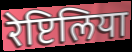
रेप्टिलिया